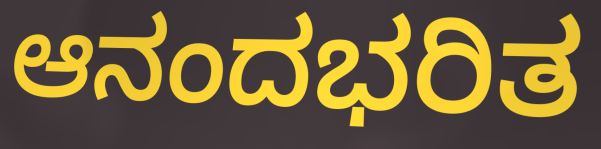
ಆನಂದಭರಿತ